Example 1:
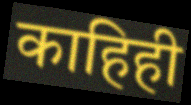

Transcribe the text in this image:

काहिही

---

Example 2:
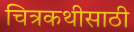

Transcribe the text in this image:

चित्रकथीसाठी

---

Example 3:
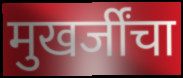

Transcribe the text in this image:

मुखर्जींचा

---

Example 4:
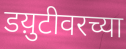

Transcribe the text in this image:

डय़ुटीवरच्या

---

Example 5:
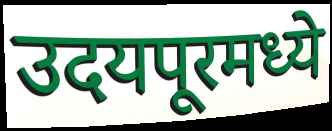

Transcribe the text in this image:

उदयपूरमध्ये